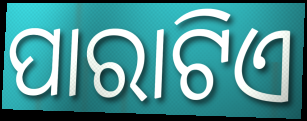
ପାରାଟିଏ